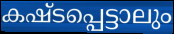
കഷ്ടപ്പെട്ടാലും